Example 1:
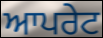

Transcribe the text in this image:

ਆਪਰੇਟ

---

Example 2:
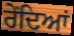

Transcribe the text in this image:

ਰੇਂਦਿਆਂ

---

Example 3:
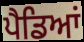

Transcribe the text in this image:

ਪੈਡਿਆਂ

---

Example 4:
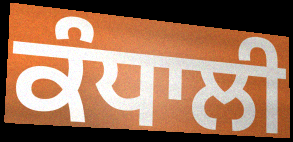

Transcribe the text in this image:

ਕੰਧਾਲੀ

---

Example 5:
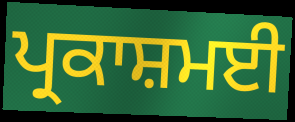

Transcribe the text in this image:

ਪ੍ਰਕਾਸ਼ਮਈ